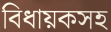
বিধায়কসহ